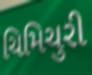
ચિમિચુરી